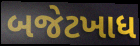
બજેટખાધ